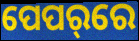
ପେପର୍‌ରେ